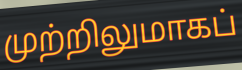
முற்றிலுமாகப்